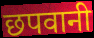
छपवानी